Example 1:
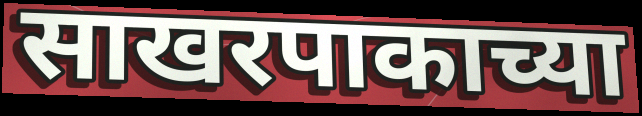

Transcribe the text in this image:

साखरपाकाच्या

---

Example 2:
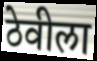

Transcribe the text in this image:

ठेवीला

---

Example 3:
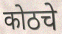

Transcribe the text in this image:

कोठचे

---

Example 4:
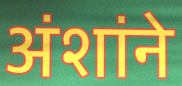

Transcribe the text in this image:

अंशांने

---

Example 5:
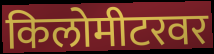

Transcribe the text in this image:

किलोमीटरवर